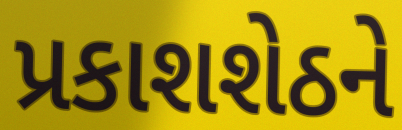
પ્રકાશશેઠને